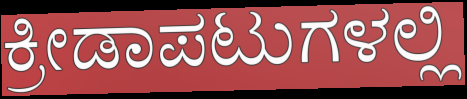
ಕ್ರೀಡಾಪಟುಗಳಲ್ಲಿ